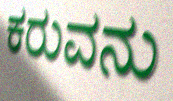
ಕರುವನು